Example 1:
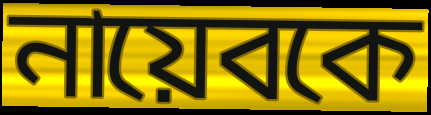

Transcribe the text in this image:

নায়েবকে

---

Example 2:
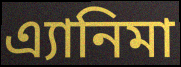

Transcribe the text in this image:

এ্যানিমা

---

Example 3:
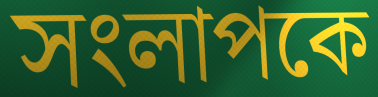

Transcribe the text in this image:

সংলাপকে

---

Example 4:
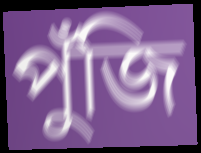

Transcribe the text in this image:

পুঁজি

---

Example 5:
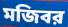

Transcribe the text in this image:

মজিবর